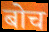
बोच